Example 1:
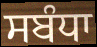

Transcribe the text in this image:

ਸਬੰਧਾ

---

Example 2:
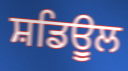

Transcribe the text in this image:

ਸ਼ਡਿਉੂਲ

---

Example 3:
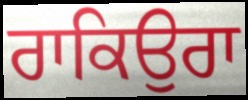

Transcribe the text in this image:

ਰਾਕਿਉਰਾ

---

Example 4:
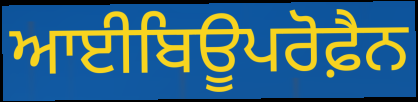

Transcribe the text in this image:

ਆਈਬਿਊਪਰੋਫ਼ੈਨ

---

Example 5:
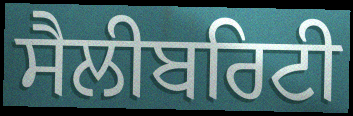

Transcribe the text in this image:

ਸੈਲੀਬਰਿਟੀ